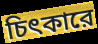
চিৎকারে